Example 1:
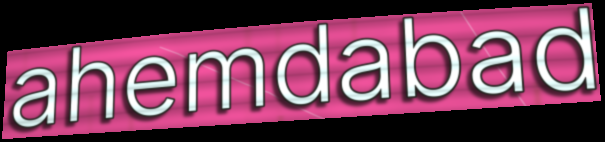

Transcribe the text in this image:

ahemdabad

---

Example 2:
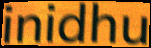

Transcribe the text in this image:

inidhu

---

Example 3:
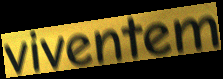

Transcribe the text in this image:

viventem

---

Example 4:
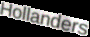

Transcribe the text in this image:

Hollanders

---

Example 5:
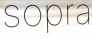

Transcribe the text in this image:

sopra